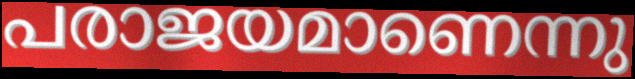
പരാജയമാണെന്നു